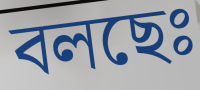
বলছেঃ